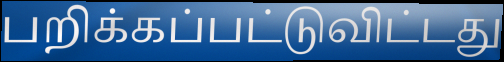
பறிக்கப்பட்டுவிட்டது